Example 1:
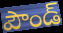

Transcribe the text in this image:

పౌండ్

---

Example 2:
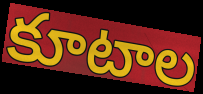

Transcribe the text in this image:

కూటాల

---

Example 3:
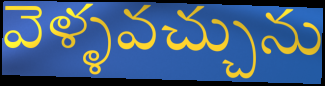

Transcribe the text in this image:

వెళ్ళవచ్చును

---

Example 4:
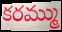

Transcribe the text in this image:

కరమ్ము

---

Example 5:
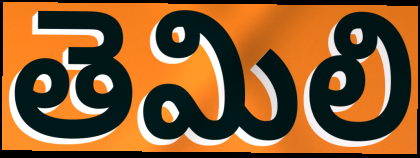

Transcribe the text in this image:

తెమిలి